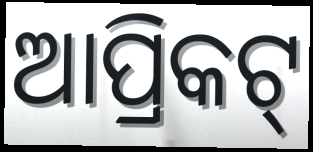
ଆପ୍ରିକଟ୍